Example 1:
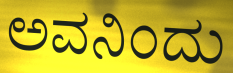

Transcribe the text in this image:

ಅವನಿಂದು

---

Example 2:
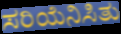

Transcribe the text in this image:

ಸರಿಯೆನಿಸಿತು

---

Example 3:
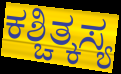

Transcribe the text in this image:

ಕಶ್ಚಿತ್ಕಸ್ಯ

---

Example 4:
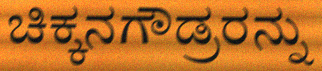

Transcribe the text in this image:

ಚಿಕ್ಕನಗೌಡ್ರರನ್ನು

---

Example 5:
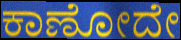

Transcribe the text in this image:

ಕಾಣೋದೇ